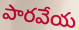
పారవేయ